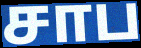
சாப